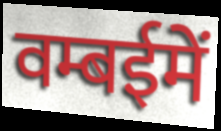
वम्बईमें